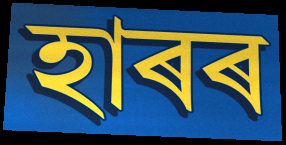
হাৰৰ